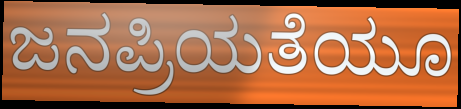
ಜನಪ್ರಿಯತೆಯೂ